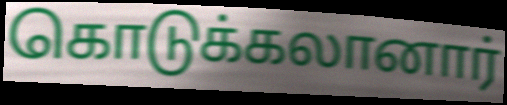
கொடுக்கலானார்